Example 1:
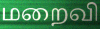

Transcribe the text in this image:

மறைவி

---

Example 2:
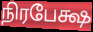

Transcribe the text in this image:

நிரபேக்ஷ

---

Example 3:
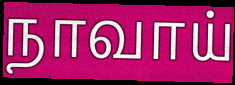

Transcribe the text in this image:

நாவாய்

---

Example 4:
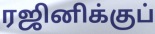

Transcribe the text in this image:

ரஜினிக்குப்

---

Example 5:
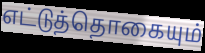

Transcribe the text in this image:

எட்டுத்தொகையும்